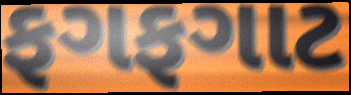
ફગફગાટ